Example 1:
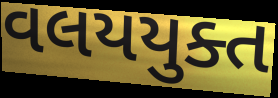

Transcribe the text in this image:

વલયયુક્ત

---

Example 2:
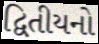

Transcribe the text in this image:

દ્વિતીયનો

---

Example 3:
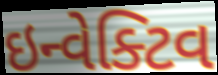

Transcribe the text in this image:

ઇન્વેક્ટિવ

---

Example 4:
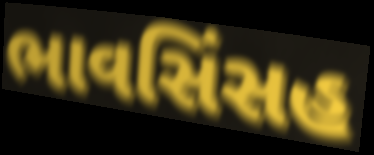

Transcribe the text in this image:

ભાવસિંસહ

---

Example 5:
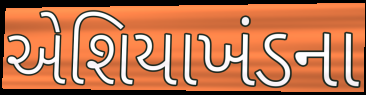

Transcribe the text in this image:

એશિયાખંડના